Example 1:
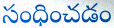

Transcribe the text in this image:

సంధించడం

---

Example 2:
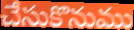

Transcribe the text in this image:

చేసుకొనుము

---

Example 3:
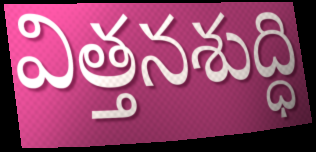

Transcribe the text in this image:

విత్తనశుద్ధి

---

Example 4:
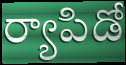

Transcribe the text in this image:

ర్యాపిడో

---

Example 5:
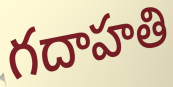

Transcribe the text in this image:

గదాహతి